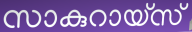
സാകുറായ്സ്